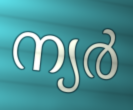
ന്യർ